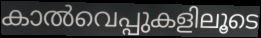
കാൽവെപ്പുകളിലൂടെ